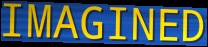
IMAGINED